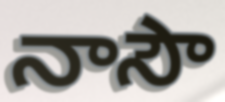
నాసౌ